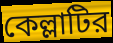
কেল্লাটির